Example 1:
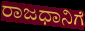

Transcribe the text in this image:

ರಾಜಧಾನಿಗೆ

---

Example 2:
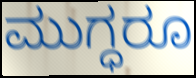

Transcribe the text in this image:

ಮುಗ್ಧರೂ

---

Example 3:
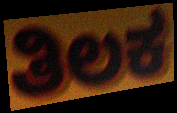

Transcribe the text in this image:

ತಿಲಕ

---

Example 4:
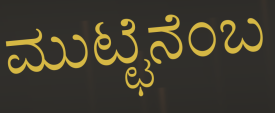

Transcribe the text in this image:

ಮುಟ್ಟೆನೆಂಬ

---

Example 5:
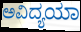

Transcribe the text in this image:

ಅವಿದ್ಯಯಾ